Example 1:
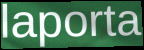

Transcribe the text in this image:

laporta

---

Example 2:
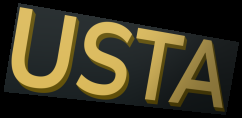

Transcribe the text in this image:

USTA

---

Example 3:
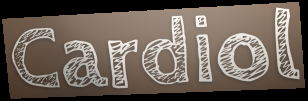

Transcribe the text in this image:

Cardiol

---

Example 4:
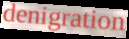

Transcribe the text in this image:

denigration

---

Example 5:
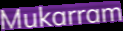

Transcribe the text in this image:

Mukarram